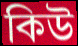
কিউ